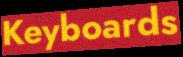
Keyboards